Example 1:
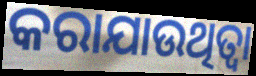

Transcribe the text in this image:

କରାଯାଉଥିତ୍ବା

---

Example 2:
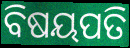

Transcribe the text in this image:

ବିଷୟପତି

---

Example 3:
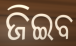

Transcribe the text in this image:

ଜିଇବ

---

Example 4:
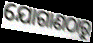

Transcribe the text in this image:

ଯୋଗାଣଠାରୁ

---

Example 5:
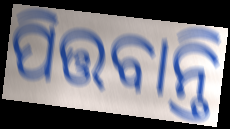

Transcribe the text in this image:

ପିତ୍ତବାନ୍ତି